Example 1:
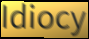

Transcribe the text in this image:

Idiocy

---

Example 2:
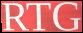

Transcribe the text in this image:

RTG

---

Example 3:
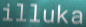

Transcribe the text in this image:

illuka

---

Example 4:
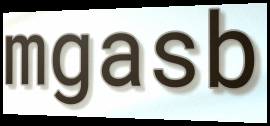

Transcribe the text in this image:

mgasb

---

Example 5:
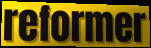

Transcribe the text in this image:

reformer